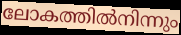
ലോകത്തിൽനിന്നും